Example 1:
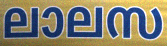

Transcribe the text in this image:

ലാലസ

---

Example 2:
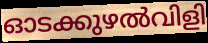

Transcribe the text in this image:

ഓടക്കുഴൽവിളി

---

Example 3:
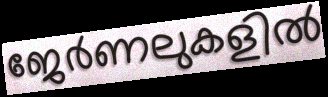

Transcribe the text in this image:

ജേർണലുകളിൽ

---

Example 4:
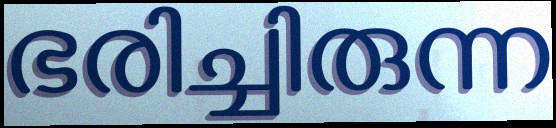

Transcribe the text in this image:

ഭരിച്ചിരുന്ന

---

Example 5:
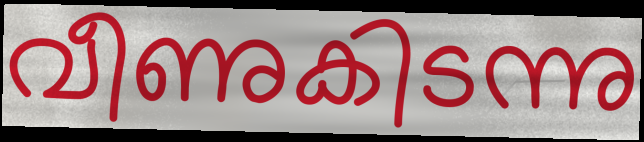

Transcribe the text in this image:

വീണുകിടന്നു